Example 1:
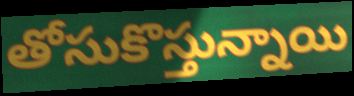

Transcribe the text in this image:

తోసుకొస్తున్నాయి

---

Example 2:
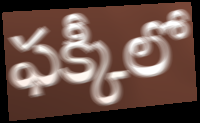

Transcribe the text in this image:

ఫక్కీలో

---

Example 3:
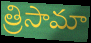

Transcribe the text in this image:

త్రిసామా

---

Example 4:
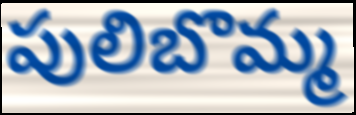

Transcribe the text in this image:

పులిబొమ్మ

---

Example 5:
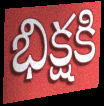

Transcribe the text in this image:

భిక్షకి